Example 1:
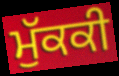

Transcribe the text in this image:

ਮੁੱਕਕੀ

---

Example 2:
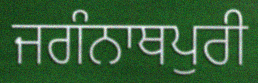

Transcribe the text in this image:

ਜਗੰਨਾਥਪੁਰੀ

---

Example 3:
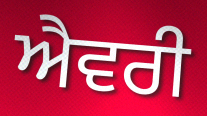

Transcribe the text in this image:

ਐਵਰੀ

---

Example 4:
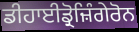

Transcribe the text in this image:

ਡੀਹਾਈਡ੍ਰੋਜ਼ਿੰਗੇਰੋਨ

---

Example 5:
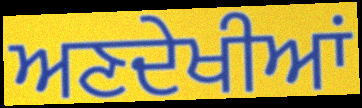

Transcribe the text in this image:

ਅਣਦੇਖੀਆਂ